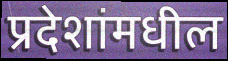
प्रदेशांमधील